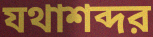
যথাশব্দর